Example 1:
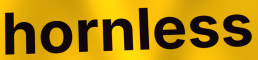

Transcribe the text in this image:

hornless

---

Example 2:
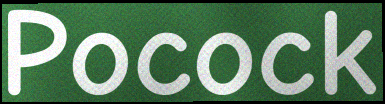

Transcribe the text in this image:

Pocock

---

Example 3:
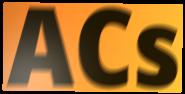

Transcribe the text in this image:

ACs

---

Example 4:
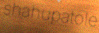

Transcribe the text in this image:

shahupatole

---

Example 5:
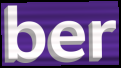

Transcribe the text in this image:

ber